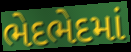
ભેદભેદમાં